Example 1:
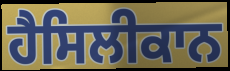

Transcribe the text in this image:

ਹੈਸਿਲੀਕਾਨ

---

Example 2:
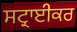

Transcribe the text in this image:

ਸਟ੍ਰਾਈਕਰ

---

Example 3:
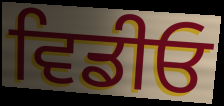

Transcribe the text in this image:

ਵਿਡੀਓ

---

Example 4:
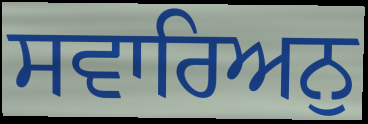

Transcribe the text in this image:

ਸਵਾਰਿਅਨੁ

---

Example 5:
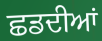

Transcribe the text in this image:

ਛਡਦੀਆਂ